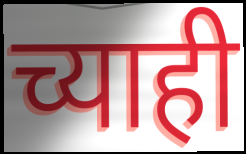
च्याही